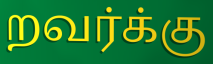
றவர்க்கு